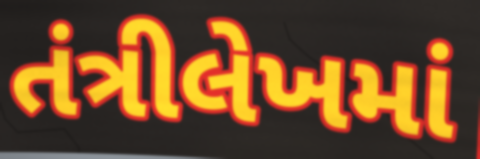
તંત્રીલેખમાં